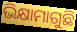
ଭିକ୍ଷାମାଗୁଛି